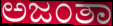
ಅಜಂತಾ